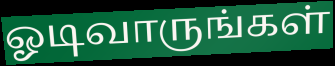
ஓடிவாருங்கள்